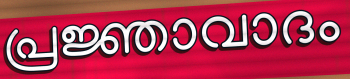
പ്രജ്ഞാവാദം